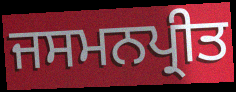
ਜਸਮਨਪ੍ਰੀਤ